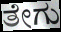
ತೇಗು